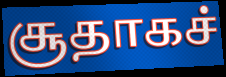
சூதாகச்